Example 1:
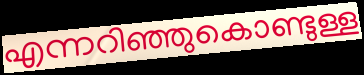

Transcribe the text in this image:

എന്നറിഞ്ഞുകൊണ്ടുള്ള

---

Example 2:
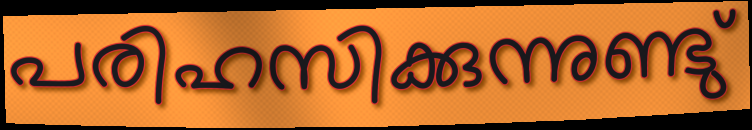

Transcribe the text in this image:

പരിഹസിക്കുന്നുണ്ടു്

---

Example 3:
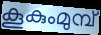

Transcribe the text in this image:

കൂകുംമുമ്പ്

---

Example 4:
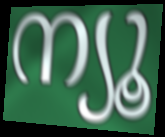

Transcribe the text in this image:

ന്യൂ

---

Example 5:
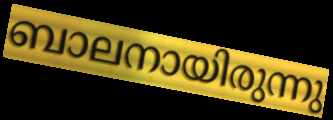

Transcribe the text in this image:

ബാലനായിരുന്നു